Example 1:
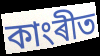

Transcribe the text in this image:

কাংৰীত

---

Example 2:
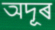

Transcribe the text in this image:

অদূৰ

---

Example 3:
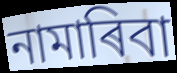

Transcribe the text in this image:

নামাৰিবা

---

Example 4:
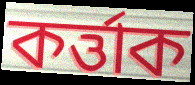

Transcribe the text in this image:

কৰ্ত্তাক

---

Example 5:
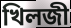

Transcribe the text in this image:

খিলজী